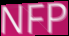
NFP